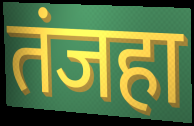
तंजहा